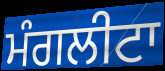
ਮੰਗਲੀਟਾ